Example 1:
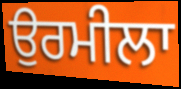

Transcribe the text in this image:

ਉਰਮੀਲਾ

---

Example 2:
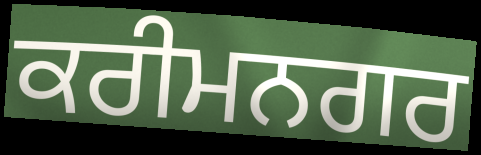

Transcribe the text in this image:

ਕਰੀਮਨਗਰ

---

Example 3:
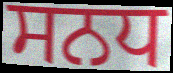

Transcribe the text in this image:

ਸਨਧ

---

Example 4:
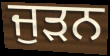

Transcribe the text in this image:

ਜੁਡ਼ਨ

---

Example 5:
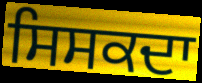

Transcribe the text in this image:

ਸਿਸਕਦਾ